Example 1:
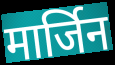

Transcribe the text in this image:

मार्जिन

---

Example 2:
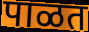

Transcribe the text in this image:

पाळत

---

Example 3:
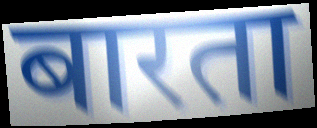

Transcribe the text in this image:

बारता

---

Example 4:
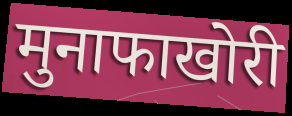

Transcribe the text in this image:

मुनाफाखोरी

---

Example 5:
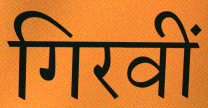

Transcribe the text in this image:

गिरवीं